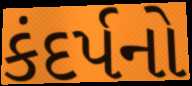
કંદર્પનો